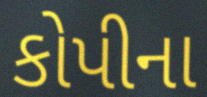
કોપીના